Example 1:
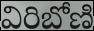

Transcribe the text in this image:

విరిబోణి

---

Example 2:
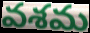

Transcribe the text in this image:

వశమ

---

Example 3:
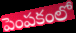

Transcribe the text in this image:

పెంపకంలో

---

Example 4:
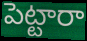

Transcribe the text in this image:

పెట్టారా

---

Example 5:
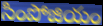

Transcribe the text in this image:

సింపోజియం